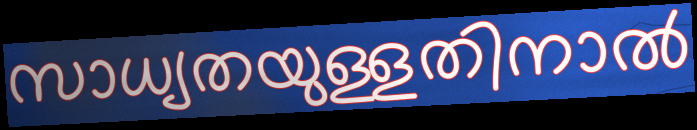
സാധ്യതയുള്ളതിനാൽ